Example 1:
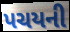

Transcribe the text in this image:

પચયની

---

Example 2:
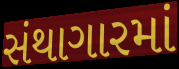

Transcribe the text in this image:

સંથાગારમાં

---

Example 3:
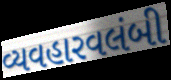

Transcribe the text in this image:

વ્યવહારવલંબી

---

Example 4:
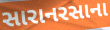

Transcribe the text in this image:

સારાનરસાના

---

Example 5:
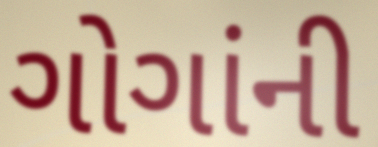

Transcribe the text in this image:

ગોગાંની